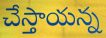
చేస్తాయన్న